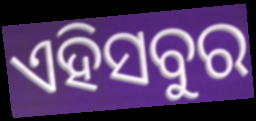
ଏହିସବୁର